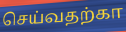
செய்வதற்கா